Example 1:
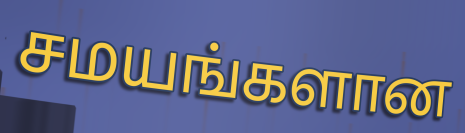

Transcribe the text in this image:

சமயங்களான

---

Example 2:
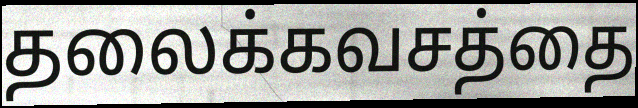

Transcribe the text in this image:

தலைக்கவசத்தை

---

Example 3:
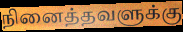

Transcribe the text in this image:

நினைத்தவளுக்கு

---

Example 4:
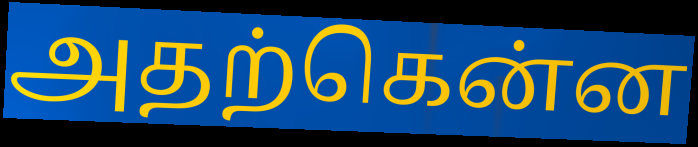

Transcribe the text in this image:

அதற்கென்ன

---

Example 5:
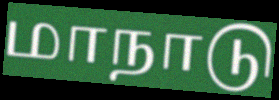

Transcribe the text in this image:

மாநாடு